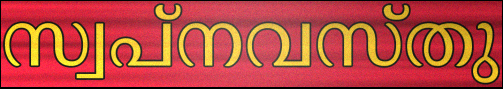
സ്വപ്നവസ്തു